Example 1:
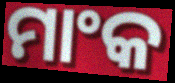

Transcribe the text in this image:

ମାଂକ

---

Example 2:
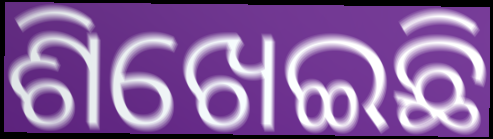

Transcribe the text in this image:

ଶିଖେଇଛି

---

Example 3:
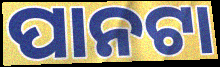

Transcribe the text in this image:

ପାନଟା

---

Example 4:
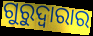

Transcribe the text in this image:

ଗୁରୁଦ୍ୱାରାର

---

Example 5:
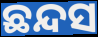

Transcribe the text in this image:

ଛନ୍ଦସ